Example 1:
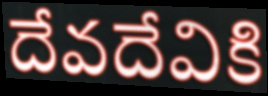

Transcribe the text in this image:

దేవదేవికి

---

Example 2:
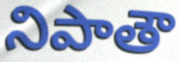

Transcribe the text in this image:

నిపాతౌ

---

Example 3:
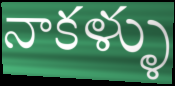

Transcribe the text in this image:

నాకళ్ళు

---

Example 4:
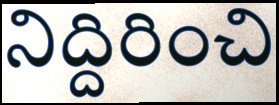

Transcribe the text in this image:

నిద్దిరించి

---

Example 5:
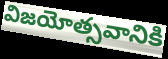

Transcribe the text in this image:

విజయోత్సవానికి